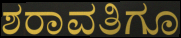
ಶರಾವತಿಗೂ